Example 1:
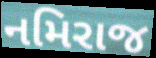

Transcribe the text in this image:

નમિરાજ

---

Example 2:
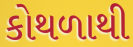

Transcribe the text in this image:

કોથળાથી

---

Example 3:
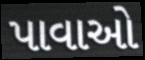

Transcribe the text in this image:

પાવાઓ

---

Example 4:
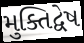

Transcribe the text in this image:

મુક્તિદ્વેષ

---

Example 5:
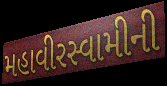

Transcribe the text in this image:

મહાવીરસ્વામીની